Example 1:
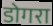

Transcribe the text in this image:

डोगरा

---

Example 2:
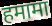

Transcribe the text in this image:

हमामा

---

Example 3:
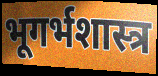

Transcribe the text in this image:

भूगर्भशास्त्र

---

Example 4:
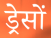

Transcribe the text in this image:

ड्रेसों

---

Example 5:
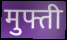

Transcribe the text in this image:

मुफ्ती